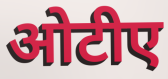
ओटीए